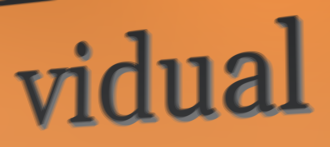
vidual